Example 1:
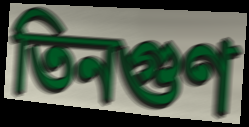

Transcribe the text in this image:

তিনগুণ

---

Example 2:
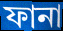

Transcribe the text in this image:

ফানা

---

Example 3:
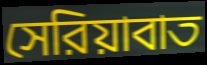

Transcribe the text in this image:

সেরিয়াবাত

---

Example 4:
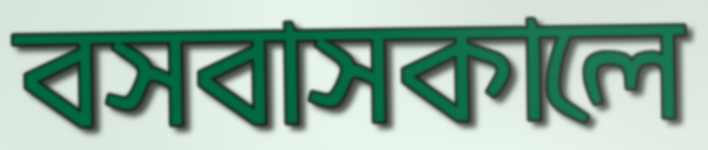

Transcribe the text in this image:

বসবাসকালে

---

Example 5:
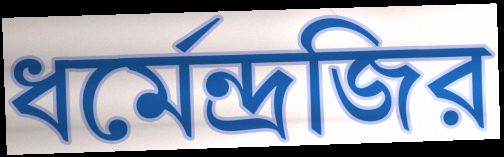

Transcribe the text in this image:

ধর্মেন্দ্রজির